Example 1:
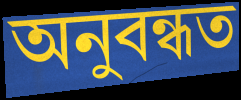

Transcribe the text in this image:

অনুবন্ধত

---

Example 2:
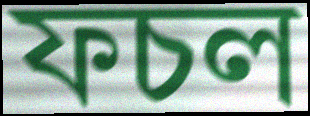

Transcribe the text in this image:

ফচল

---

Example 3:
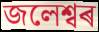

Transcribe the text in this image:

জলেশ্বৰ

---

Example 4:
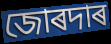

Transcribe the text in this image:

জোৰদাৰ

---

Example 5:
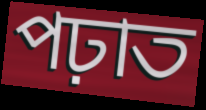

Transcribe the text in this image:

পঢ়াত